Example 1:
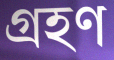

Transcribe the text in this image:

গ্ৰহণ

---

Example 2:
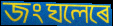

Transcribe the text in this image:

জংঘলেৰে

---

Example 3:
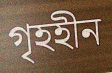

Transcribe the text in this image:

গৃহহীন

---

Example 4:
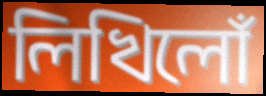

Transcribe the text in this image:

লিখিলোঁ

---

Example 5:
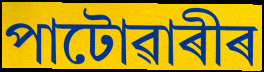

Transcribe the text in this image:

পাটোৱাৰীৰ